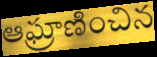
ఆఘ్రాణించిన